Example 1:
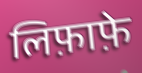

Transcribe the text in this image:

लिफ़ाफ़े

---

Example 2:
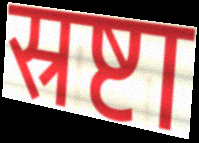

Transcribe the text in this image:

स्रष्टा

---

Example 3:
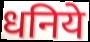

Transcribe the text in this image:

धनिये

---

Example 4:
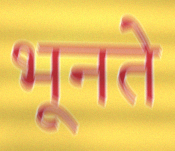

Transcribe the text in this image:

भूनते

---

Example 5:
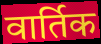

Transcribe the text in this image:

वार्तिक